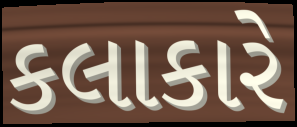
કલાકારે